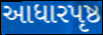
આધારપૃષ્ઠ